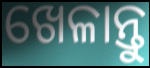
ଖେଳାନ୍ତୁ